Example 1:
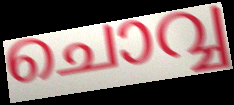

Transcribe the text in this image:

ചൊവ്വ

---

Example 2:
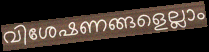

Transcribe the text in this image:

വിശേഷണങ്ങളെല്ലാം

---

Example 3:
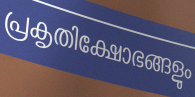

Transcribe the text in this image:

പ്രകൃതിക്ഷോഭങ്ങളും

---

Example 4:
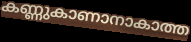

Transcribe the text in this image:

കണ്ണുകാണാനാകാത്ത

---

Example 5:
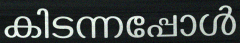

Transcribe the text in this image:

കിടന്നപ്പോൾ